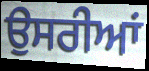
ਉਸਰੀਆਂ